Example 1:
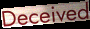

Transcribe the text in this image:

Deceived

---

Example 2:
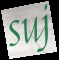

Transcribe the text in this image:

suj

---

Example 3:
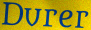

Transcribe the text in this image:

Durer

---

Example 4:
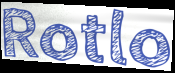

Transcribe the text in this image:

Rotlo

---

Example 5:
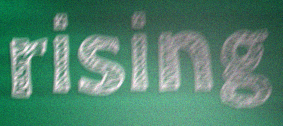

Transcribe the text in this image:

rising